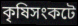
কৃষিসংকটে